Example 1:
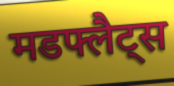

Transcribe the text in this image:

मडफ्लैट्स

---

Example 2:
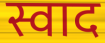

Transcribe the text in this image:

स्वाद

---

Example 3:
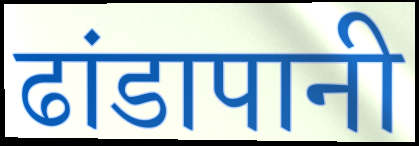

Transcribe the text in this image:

ढांडापानी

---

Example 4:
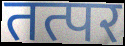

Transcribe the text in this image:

तत्‍पर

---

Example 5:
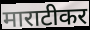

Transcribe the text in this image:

माराटीकर